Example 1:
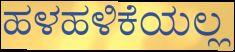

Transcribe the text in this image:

ಹಳಹಳಿಕೆಯಲ್ಲ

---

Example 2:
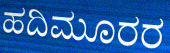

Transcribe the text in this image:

ಹದಿಮೂರರ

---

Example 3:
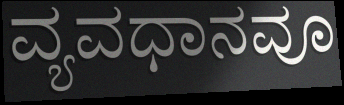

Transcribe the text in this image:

ವ್ಯವಧಾನವೂ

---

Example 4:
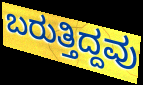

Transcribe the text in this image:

ಬರುತ್ತಿದ್ದವು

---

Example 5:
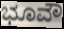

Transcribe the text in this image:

ಭೂವೌ